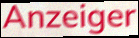
Anzeiger